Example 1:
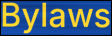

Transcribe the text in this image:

Bylaws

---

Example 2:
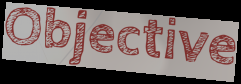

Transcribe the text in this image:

Objective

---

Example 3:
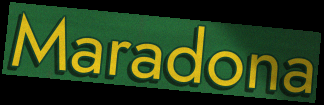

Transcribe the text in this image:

Maradona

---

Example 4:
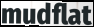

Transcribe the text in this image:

mudflat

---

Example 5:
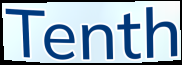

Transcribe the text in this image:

Tenth